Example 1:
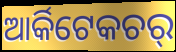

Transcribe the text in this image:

ଆର୍କିଟେକଚର୍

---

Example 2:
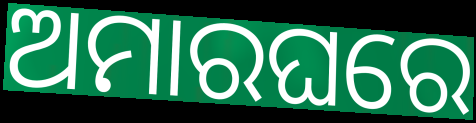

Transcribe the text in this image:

ଅମାରଘରେ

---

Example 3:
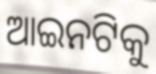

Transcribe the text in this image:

ଆଇନଟିକୁ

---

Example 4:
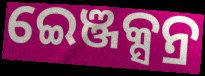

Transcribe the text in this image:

ଇେଞ୍ଜକ୍ସନ୍ର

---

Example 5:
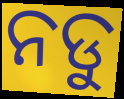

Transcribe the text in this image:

ନଡୁ